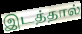
இடத்தால்